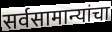
सर्वसामान्यांचा